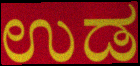
ಉಡ